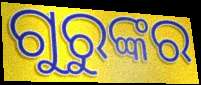
ଗୁରୁଙ୍କର